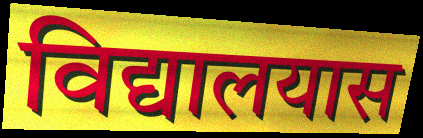
विद्यालयास